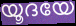
യൂദയേ